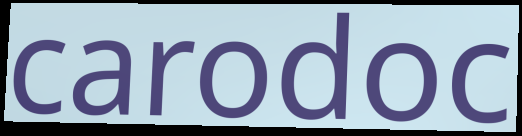
carodoc